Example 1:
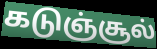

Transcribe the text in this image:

கடுஞ்சூல்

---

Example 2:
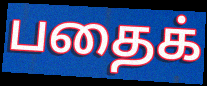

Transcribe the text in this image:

பதைக்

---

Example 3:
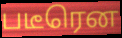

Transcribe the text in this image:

படீரென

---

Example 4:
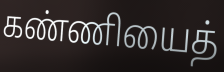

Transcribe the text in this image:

கண்ணியைத்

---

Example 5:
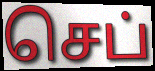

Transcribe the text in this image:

செப்